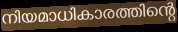
നിയമാധികാരത്തിന്റെ